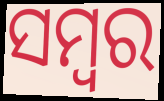
ସମ୍ବର